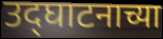
उद्घाटनाच्या